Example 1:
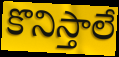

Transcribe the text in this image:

కొనిస్తాలే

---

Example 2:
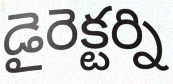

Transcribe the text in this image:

డైరెక్టర్ని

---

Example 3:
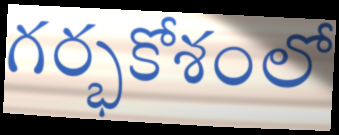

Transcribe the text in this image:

గర్భకోశంలో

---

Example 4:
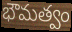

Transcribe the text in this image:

భౌమత్వం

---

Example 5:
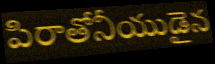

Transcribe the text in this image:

పిరాతోనీయుడైన